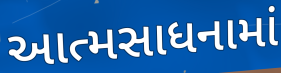
આત્મસાધનામાં